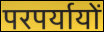
परपर्यायों